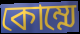
কোম্মে